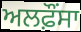
ਅਲਫ਼ੌਂਸਾ